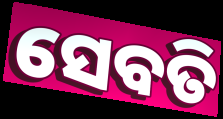
ସେବତି